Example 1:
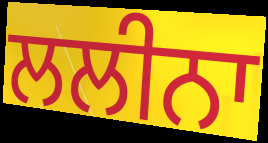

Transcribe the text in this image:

ਲਲੀਨਾ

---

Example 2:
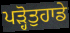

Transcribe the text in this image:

ਪੜ੍ਹੋਤੁਹਾਡੇ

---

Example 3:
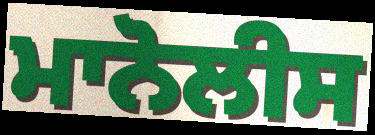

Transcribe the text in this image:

ਮਾਨੋਲੀਸ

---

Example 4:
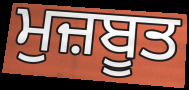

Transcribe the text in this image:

ਮੁਜ਼ਬੂਤ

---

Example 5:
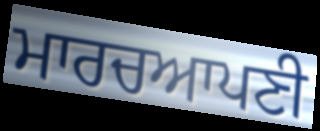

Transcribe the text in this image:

ਮਾਰਚਆਪਣੀ